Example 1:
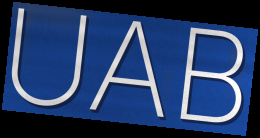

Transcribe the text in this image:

UAB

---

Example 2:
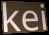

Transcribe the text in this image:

kei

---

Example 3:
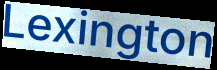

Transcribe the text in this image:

Lexington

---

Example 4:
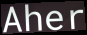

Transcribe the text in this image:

Aher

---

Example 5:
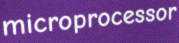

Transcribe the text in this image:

microprocessor